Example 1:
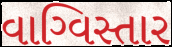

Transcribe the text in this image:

વાગ્વિસ્તાર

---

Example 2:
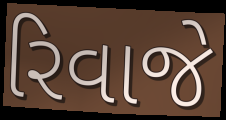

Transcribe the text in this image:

રિવાજે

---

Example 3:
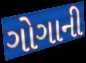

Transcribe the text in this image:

ગોગાની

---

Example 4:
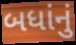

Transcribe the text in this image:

બધાંનું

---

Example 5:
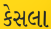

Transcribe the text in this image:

કેસલા